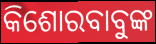
କିଶୋରବାବୁଙ୍କ